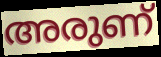
അരുണ്